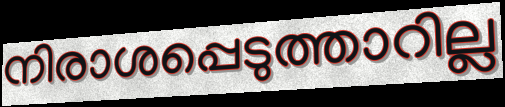
നിരാശപ്പെടുത്താറില്ല